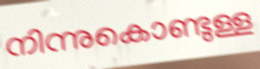
നിന്നുകൊണ്ടുള്ള